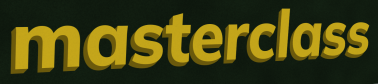
masterclass